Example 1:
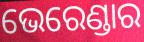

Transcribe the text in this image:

ଭେରେଣ୍ଡାର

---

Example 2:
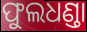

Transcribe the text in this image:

ଫୁଲଧଣ୍ଡା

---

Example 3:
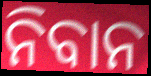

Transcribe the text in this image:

ନିବାନ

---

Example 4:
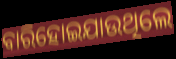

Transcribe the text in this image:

ବାରିହୋଇଯାଉଥିଲେ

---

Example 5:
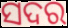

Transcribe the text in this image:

ସଦର